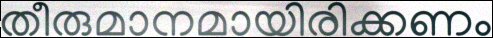
തീരുമാനമായിരിക്കണം